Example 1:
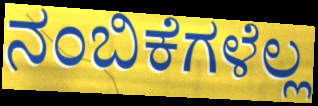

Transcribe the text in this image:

ನಂಬಿಕೆಗಳೆಲ್ಲ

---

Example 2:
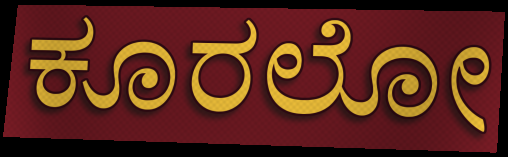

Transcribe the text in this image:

ಕೂರಲೋ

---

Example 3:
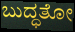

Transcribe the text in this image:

ಬುದ್ಧತೋ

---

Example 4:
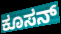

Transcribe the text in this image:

ಕೂಸನ್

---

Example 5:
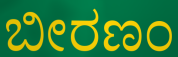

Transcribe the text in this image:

ಬೀರಣಂ